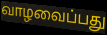
வாழவைப்பது